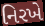
નિરખે